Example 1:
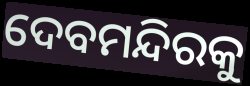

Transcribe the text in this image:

ଦେବମନ୍ଦିରକୁ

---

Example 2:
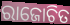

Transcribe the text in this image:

ରାଜୋଚିତ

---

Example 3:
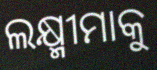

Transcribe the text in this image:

ଲକ୍ଷ୍ମୀମାକୁ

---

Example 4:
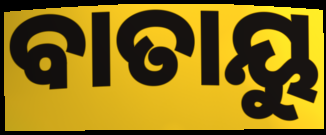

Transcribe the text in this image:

ବାତାୟୁ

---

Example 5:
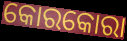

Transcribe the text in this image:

କୋରକୋରା